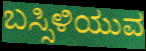
ಬಸ್ಸಿಳಿಯುವ